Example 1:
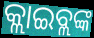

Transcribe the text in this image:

କ୍ଲାଇବ୍ଲଙ୍କ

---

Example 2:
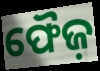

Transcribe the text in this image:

ଫୈଜ଼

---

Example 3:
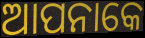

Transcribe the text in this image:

ଆପନାକେ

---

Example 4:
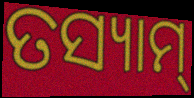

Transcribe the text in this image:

ତସ୍ୟାମ୍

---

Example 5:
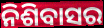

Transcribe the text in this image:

ନିଶିବାସର